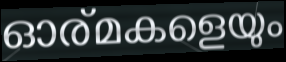
ഓര്മകളെയും